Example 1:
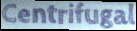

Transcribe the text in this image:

Centrifugal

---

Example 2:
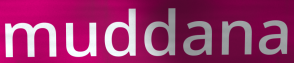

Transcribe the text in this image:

muddana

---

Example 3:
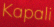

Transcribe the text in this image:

Kapali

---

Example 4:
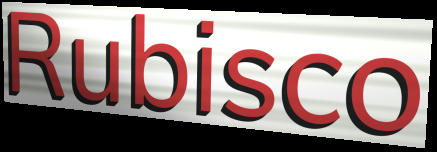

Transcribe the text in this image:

Rubisco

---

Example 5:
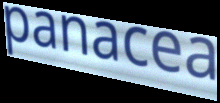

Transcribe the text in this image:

panacea